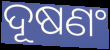
ଦୂଷଣଂ